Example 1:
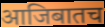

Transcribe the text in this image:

आजिबातच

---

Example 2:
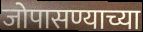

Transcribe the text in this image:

जोपासण्याच्या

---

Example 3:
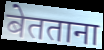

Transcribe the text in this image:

बेतताना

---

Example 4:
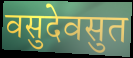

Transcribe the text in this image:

वसुदेवसुत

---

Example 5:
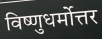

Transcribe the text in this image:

विष्णुधर्मोत्तर